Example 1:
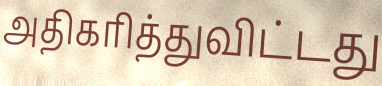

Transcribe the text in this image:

அதிகரித்துவிட்டது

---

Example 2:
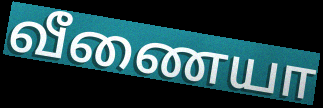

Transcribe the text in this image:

வீணையா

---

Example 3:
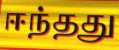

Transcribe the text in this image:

ஈந்தது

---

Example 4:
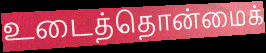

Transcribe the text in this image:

உடைத்தொன்மைக்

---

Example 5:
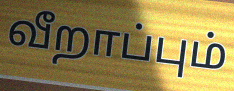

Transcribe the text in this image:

வீறாப்பும்